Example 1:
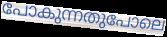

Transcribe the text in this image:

പോകുന്നതുപോലെ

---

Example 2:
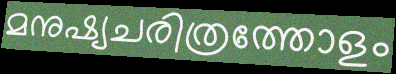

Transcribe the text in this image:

മനുഷ്യചരിത്രത്തോളം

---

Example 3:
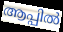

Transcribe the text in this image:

ആപ്പിൽ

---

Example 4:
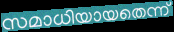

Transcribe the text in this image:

സമാധിയായതെന്ന്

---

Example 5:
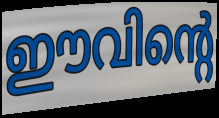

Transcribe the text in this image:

ഈവിന്റെ